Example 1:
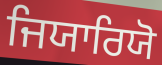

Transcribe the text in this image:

ਜਿਯਾਰਿਯੋ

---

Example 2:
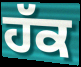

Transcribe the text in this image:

ਹੱਕ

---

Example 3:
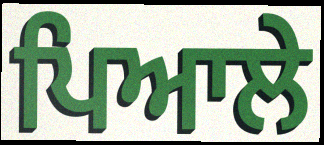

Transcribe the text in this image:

ਪਿਆਲੇ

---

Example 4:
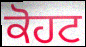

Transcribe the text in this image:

ਕੋਹਟ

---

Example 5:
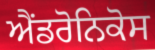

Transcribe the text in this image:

ਐਂਡਰੋਨਿਕੋਸ